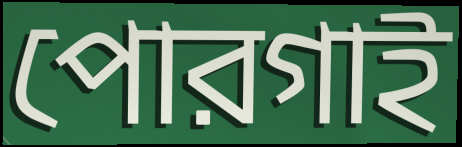
পোরগাই